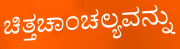
ಚಿತ್ತಚಾಂಚಲ್ಯವನ್ನು